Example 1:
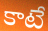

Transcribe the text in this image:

కాటే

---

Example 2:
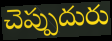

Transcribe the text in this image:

చెప్పుదురు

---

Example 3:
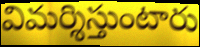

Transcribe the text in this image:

విమర్శిస్తుంటారు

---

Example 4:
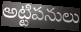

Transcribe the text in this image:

అట్టిపనులు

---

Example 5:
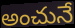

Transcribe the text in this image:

అంచునే